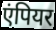
एंपियर